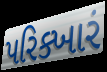
પરિક્ખારં